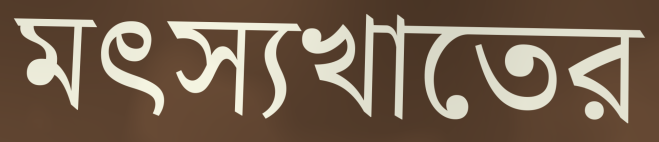
মৎস্যখাতের